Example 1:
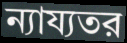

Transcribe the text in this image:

ন্যায্যতর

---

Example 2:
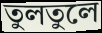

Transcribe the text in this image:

তুলতুলে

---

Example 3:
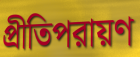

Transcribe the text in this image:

প্রীতিপরায়ণ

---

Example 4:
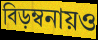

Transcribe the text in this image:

বিড়ম্বনায়ও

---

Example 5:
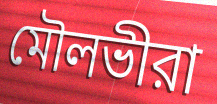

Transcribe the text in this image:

মৌলভীরা